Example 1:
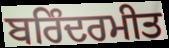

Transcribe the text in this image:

ਬਰਿੰਦਰਮੀਤ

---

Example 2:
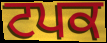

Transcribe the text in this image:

ਟਪਕ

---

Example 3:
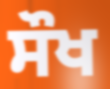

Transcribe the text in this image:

ਸੌਖ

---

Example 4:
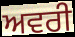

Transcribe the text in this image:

ਅਵਰੀ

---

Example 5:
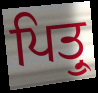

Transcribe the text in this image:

ਪਿਤ੍ਰੁ